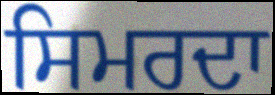
ਸਿਮਰਦਾ